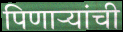
पिणाऱ्यांची